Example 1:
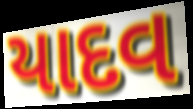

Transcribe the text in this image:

યાદવ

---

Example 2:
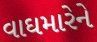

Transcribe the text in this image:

વાઘમારેને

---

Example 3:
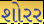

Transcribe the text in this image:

શોરર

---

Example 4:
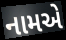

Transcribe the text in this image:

નામએ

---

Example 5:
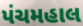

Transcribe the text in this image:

પંચમહાલ